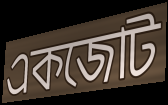
একজোট